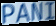
PANI